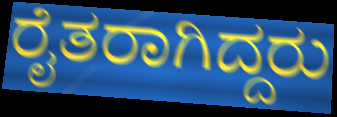
ರೈತರಾಗಿದ್ದರು